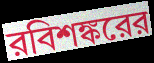
রবিশঙ্করের